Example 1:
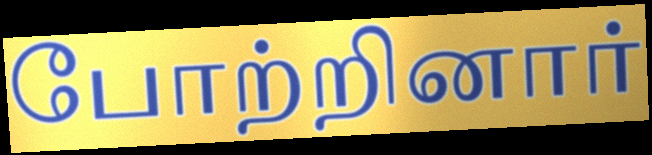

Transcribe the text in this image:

போற்றினார்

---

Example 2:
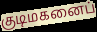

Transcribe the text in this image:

குடிமகனைப்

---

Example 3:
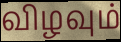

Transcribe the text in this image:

விழவும்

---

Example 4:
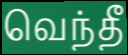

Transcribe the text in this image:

வெந்தீ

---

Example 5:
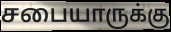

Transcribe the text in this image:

சபையாருக்கு